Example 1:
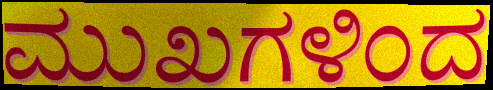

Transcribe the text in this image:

ಮುಖಗಳಿಂದ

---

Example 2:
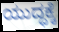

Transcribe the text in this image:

ಯುದ್ಧಕ್ಕೆ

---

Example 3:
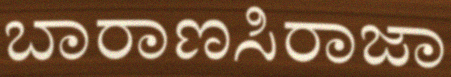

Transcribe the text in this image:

ಬಾರಾಣಸಿರಾಜಾ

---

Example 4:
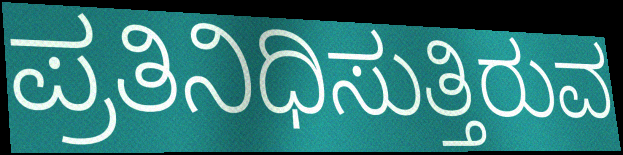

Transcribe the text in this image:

ಪ್ರತಿನಿಧಿಸುತ್ತಿರುವ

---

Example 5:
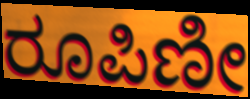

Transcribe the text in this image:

ರೂಪಿಣೀ